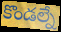
కొండల్నే